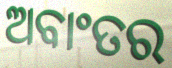
ଅବାଂତର